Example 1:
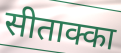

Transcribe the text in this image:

सीताक्का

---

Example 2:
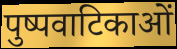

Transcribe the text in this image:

पुष्पवाटिकाओं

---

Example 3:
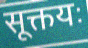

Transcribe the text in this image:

सूक्तयः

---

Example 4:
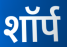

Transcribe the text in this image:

शॉर्प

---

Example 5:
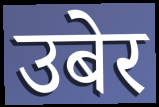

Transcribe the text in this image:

उबेर